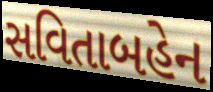
સવિતાબહેન